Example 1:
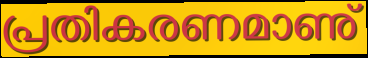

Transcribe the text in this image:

പ്രതികരണമാണു്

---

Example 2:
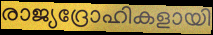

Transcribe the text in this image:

രാജ്യദ്രോഹികളായി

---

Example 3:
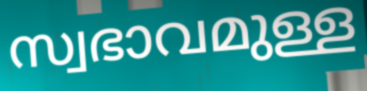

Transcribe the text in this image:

സ്വഭാവമുള്ള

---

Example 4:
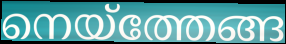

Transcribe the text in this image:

നെയ്ത്തേങ്ങ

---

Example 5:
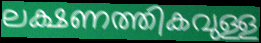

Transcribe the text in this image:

ലക്ഷണത്തികവുള്ള